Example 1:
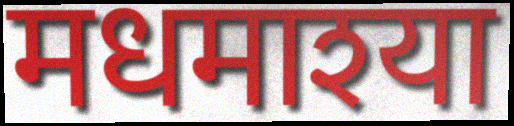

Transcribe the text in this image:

मधमाश्‍या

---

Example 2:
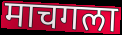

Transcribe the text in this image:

माचगला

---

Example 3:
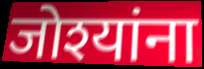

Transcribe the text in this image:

जोश्यांना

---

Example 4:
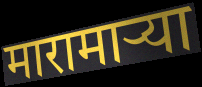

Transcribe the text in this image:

मारामार्‍या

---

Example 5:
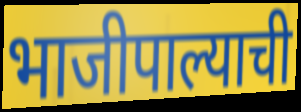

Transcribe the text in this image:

भाजीपाल्याची